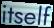
itself